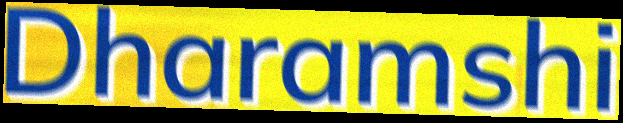
Dharamshi